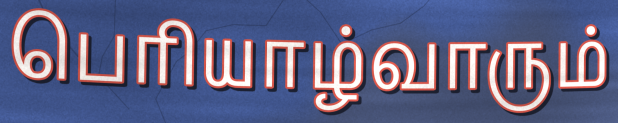
பெரியாழ்வாரும்